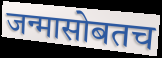
जन्मासोबतच